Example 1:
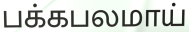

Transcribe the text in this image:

பக்கபலமாய்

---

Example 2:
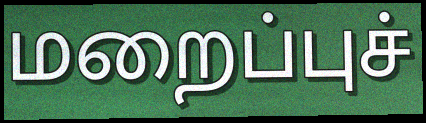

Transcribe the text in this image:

மறைப்புச்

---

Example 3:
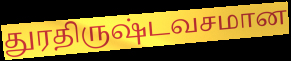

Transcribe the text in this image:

துரதிருஷ்டவசமான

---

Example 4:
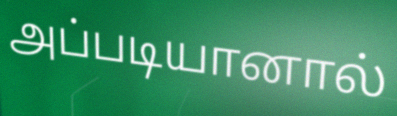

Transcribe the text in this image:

அப்படியானால்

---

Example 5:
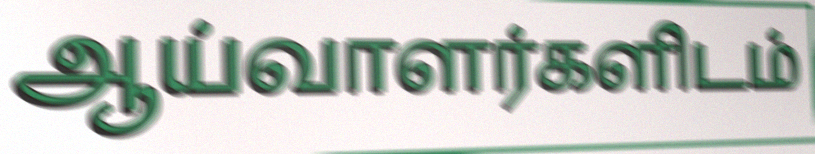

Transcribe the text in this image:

ஆய்வாளர்களிடம்